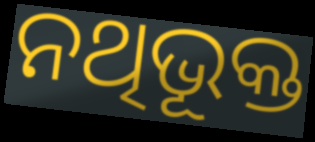
ନଥିଭୂକ୍ତ